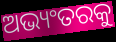
ଅଭ୍ୟଂତରକୁ